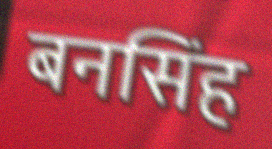
बनसिंह